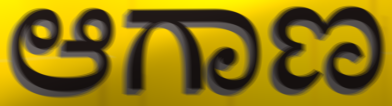
ಆಗಾಣ